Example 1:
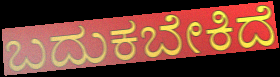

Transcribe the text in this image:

ಬದುಕಬೇಕಿದೆ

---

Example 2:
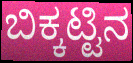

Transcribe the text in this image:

ಬಿಕ್ಕಟ್ಟಿನ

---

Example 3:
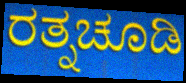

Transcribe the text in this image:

ರತ್ನಚೂಡಿ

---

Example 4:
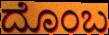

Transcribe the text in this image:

ದೊಂಬ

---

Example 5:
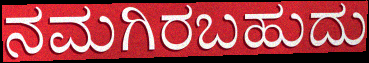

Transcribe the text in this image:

ನಮಗಿರಬಹುದು